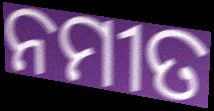
ନମୀତ